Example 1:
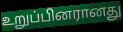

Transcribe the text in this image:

உறுப்பினரானது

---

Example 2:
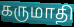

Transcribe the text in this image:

கருமாதி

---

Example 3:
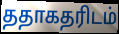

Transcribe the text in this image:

ததாகதரிடம்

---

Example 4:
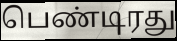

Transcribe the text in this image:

பெண்டிரது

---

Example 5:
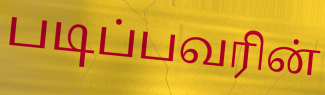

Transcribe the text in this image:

படிப்பவரின்